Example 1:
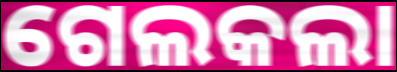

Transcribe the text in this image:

ଗେଲକଲା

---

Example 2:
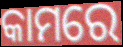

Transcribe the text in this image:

କାମରେ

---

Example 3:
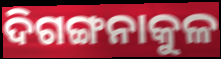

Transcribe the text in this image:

ଦିଗଙ୍ଗନାକୁଳ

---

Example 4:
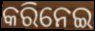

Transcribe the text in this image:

କରିନେଇ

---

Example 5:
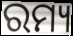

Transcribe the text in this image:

ରମ୍ୟ